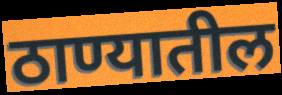
ठाण्यातील